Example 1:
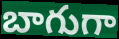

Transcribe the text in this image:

బాగుగా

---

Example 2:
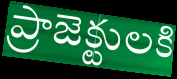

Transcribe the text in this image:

ప్రాజెక్టులకి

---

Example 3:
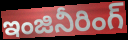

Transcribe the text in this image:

ఇంజినీరింగ్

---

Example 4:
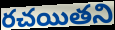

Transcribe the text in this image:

రచయితని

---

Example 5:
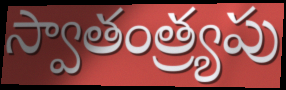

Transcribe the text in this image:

స్వాతంత్ర్యపు